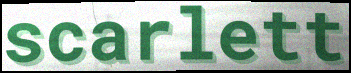
scarlett